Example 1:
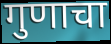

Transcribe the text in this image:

गुणाचा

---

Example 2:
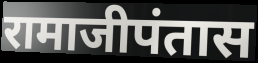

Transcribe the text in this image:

रामाजीपंतास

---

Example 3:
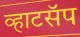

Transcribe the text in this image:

व्हाटसॅप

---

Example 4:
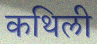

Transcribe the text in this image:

कथिली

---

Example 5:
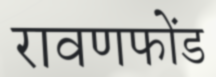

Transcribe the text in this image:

रावणफोंड